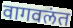
वागवलंत